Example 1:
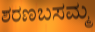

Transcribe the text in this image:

ಶರಣಬಸಮ್ಮ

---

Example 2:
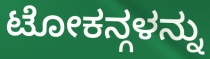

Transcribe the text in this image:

ಟೋಕನ್ಗಳನ್ನು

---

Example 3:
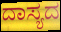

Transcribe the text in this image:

ದಾಸ್ಯದ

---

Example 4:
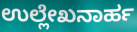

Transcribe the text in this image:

ಉಲ್ಲೇಖನಾರ್ಹ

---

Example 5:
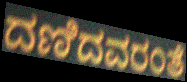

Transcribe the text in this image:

ದಣಿದವರಂತೆ